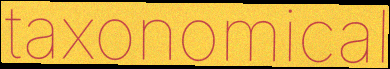
taxonomical